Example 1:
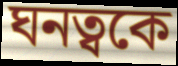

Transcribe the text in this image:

ঘনত্বকে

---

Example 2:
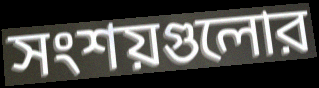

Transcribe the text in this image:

সংশয়গুলোর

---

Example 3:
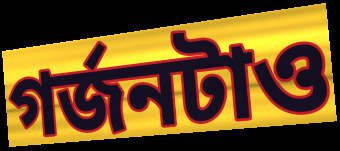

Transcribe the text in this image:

গর্জনটাও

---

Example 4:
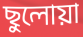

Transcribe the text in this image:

ছুলোয়া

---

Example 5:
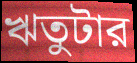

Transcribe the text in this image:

ঋতুটার